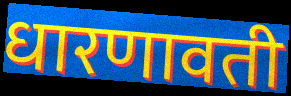
धारणावती